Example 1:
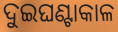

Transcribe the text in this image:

ଦୁଇଘଣ୍ଟାକାଳ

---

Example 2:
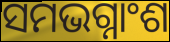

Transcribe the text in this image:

ସମଭଗ୍ନାଂଶ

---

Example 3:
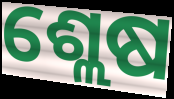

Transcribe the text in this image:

ଶ୍ଲେଷ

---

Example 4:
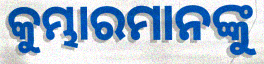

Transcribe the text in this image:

କୁମ୍ଭାରମାନଙ୍କୁ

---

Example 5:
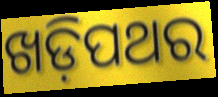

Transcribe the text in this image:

ଖଡ଼ିପଥର